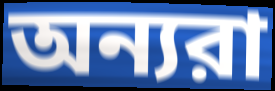
অন্যরা